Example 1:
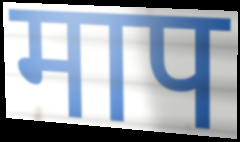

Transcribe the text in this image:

माप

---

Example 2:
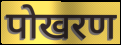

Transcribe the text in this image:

पोखरण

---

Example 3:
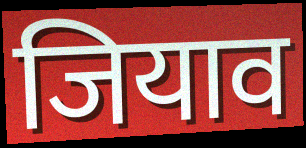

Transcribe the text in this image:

जियाव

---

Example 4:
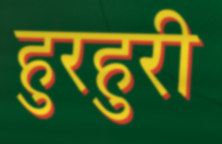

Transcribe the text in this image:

हुरहुरी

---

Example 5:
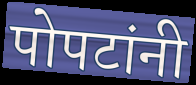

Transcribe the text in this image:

पोपटांनी